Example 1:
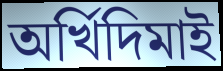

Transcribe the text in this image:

অৰ্খিদিমাই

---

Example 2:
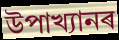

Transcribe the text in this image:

উপাখ্যানৰ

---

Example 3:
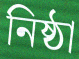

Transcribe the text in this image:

নিষ্ঠা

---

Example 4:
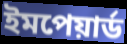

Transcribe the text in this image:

ইমপেয়াৰ্ড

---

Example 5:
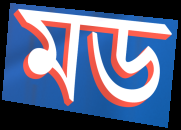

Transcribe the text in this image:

মড